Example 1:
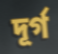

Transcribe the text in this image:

দূর্গ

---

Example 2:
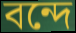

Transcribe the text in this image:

বন্দে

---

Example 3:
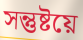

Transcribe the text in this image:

সন্তুষ্টয়ে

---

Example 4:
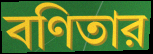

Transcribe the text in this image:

বণিতার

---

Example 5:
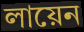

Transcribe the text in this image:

লায়েন